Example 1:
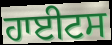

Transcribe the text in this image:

ਹਾਈਟਸ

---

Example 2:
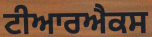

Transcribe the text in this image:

ਟੀਆਰਐਕਸ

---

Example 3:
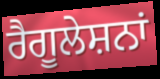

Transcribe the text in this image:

ਰੈਗੂਲੇਸ਼ਨਾਂ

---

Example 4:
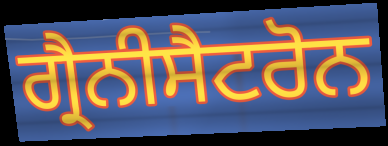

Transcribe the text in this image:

ਗ੍ਰੈਨੀਸੈਟਰੋਨ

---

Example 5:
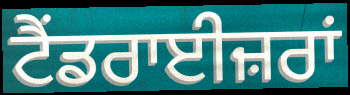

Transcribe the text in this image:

ਟੈਂਡਰਾਈਜ਼ਰਾਂ